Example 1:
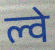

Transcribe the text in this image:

ल्वे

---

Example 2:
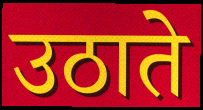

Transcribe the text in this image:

उठाते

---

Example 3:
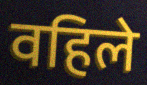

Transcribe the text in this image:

वहिले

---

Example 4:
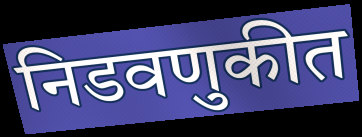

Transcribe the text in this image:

निडवणुकीत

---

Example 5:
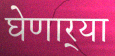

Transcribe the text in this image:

घेणार्या